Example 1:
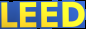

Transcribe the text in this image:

LEED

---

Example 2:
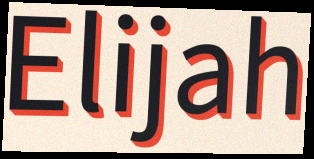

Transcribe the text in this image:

Elijah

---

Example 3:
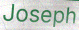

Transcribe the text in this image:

Joseph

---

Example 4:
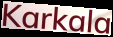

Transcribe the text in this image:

Karkala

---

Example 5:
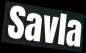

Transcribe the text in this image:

Savla